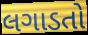
લગાડતો